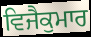
ਵਿਜੈਕੁਮਾਰ